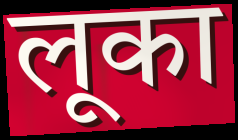
लूका